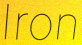
Iron